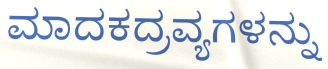
ಮಾದಕದ್ರವ್ಯಗಳನ್ನು